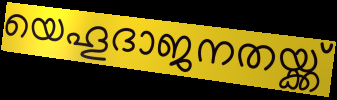
യെഹൂദാജനതയ്ക്ക്